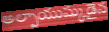
అల్పాయుష్కుడైన